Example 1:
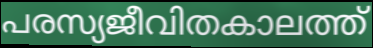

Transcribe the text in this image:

പരസ്യജീവിതകാലത്ത്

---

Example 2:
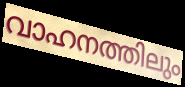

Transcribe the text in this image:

വാഹനത്തിലും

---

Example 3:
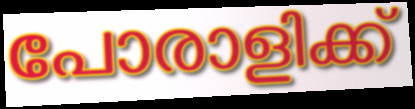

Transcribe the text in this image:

പോരാളിക്ക്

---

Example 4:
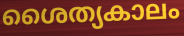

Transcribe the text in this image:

ശൈത്യകാലം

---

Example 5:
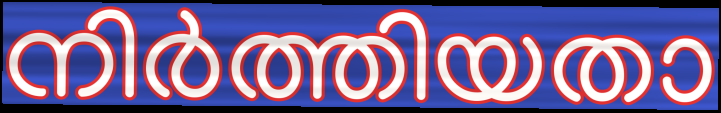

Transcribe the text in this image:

നിർത്തിയതാ